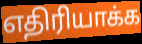
எதிரியாக்க